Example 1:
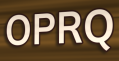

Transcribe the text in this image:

OPRQ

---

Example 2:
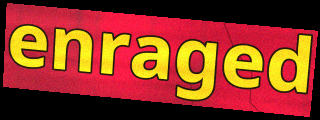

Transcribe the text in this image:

enraged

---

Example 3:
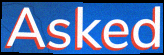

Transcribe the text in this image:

Asked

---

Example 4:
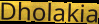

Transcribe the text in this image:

Dholakia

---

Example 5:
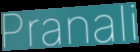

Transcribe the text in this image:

Pranali